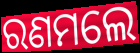
ରଣମଲେ